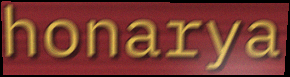
honarya